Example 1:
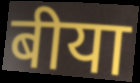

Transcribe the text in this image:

बीया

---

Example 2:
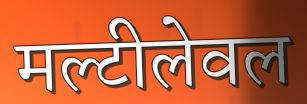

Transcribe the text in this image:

मल्टीलेवल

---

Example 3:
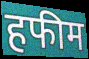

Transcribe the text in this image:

हफीम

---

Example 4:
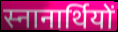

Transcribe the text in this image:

स्नानार्थियों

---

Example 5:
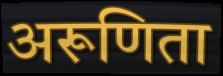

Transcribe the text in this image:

अरूणिता